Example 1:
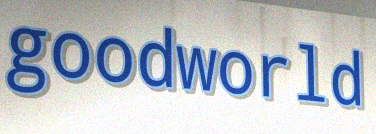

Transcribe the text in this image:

goodworld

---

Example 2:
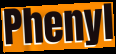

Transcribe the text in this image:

Phenyl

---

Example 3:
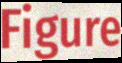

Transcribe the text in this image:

Figure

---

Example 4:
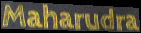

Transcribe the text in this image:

Maharudra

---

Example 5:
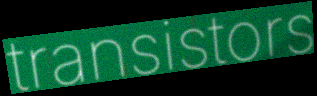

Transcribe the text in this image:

transistors